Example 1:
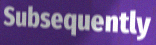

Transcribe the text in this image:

Subsequently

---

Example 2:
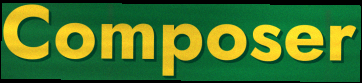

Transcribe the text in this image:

Composer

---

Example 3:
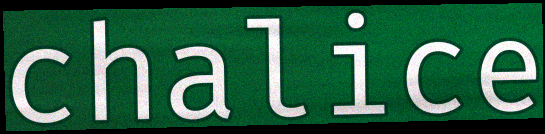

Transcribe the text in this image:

chalice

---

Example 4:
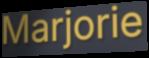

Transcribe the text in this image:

Marjorie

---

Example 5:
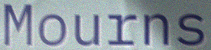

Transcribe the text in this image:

Mourns